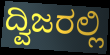
ದ್ವಿಜರಲ್ಲಿ